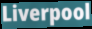
Liverpool